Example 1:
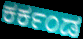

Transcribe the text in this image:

ಕರ್ಕಂಡ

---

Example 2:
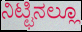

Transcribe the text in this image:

ನಿಟ್ಟಿನಲ್ಲೂ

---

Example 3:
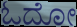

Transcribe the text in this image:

ಓದೋ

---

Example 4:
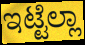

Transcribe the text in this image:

ಇಟ್ಟೆಲ್ಲಾ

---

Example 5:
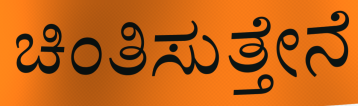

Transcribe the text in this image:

ಚಿಂತಿಸುತ್ತೇನೆ